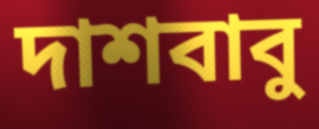
দাশবাবু